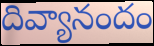
దివ్యానందం